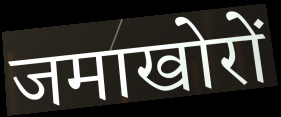
जमाखोरों